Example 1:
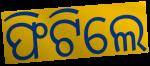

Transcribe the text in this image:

ଫିଟିଲେ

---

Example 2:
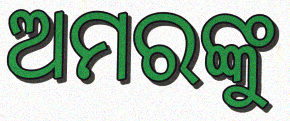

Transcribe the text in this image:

ଅମରଙ୍କୁ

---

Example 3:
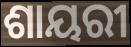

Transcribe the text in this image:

ଶାୟରୀ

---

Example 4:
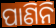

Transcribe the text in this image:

ପାଣିନି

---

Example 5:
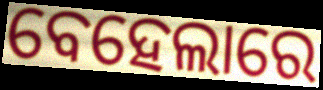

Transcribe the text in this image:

ବେହେଲାରେ